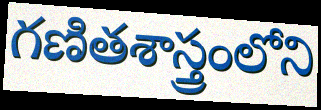
గణితశాస్త్రంలోని